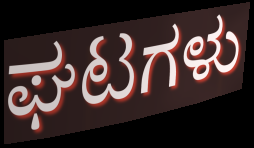
ಘಟಗಳು